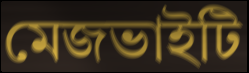
মেজভাইটি